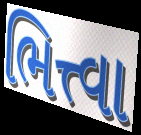
ભિત્ત્વા